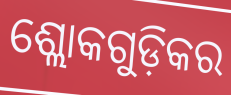
ଶ୍ଲୋକଗୁଡ଼ିକର